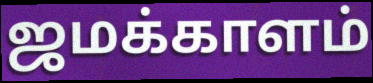
ஜமக்காளம்